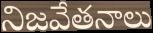
నిజవేతనాలు